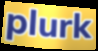
plurk